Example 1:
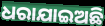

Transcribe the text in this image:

ଧରାଯାଇଅଛି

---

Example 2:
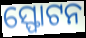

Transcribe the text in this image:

ସ୍ଫୋଟନ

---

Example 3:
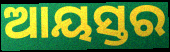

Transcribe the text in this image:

ଆୟସ୍ତର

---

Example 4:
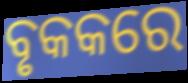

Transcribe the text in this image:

ବୃକକରେ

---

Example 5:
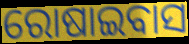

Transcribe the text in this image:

ରୋଷାଇବାସ